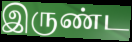
இருண்ட